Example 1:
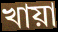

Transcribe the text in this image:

খায়া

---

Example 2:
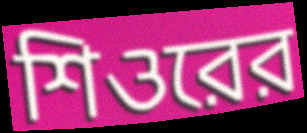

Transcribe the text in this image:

শিওরের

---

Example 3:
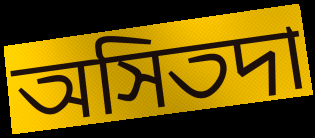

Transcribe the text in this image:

অসিতদা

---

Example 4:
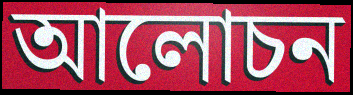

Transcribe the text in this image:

আলোচন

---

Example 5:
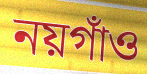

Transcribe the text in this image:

নয়গাঁও